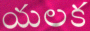
యలక